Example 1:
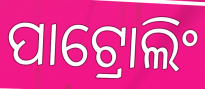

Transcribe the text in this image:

ପାଟ୍ରୋଲିଂ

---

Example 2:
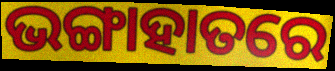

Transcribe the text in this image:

ଭଙ୍ଗାହାତରେ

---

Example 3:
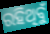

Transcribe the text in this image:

ରହିଥିବୁଁ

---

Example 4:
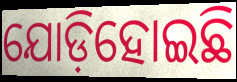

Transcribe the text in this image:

ଯୋଡ଼ିହୋଇଛି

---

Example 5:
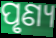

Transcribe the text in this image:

ପୃଣ୍ୟ